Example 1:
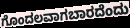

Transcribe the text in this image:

ಗೊಂದಲವಾಗಬಾರದೆಂದು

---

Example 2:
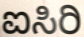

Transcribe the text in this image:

ಐಸಿರಿ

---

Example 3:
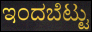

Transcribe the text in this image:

ಇಂದಬೆಟ್ಟು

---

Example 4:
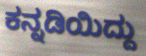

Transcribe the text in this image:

ಕನ್ನಡಿಯಿದ್ದು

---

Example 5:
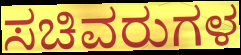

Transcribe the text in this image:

ಸಚಿವರುಗಳ